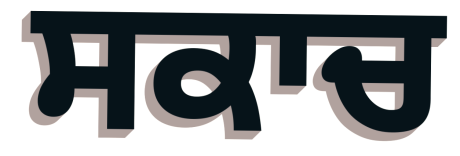
ਸਕਾਚ